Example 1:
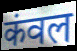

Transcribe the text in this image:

कंवल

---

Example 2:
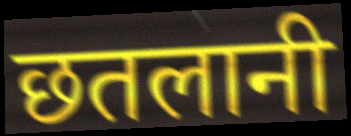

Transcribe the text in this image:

छतलानी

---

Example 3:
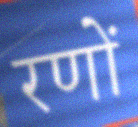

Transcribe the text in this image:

रणों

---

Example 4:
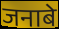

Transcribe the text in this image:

जनाबे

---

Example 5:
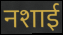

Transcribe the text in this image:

नशाई